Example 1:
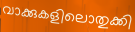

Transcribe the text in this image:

വാക്കുകളിലൊതുക്കി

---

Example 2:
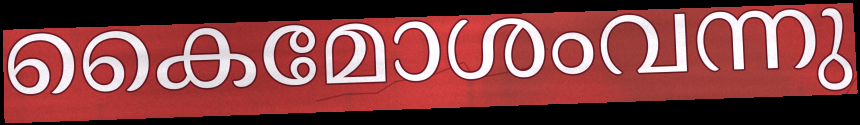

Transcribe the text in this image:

കൈമോശംവന്നു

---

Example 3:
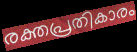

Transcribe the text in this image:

രക്തപ്രതികാരം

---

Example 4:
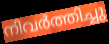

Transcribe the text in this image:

നിവർത്തിച്ചു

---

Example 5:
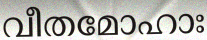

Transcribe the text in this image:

വീതമോഹാഃ